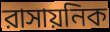
রাসায়নিক